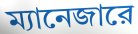
ম্যানেজারে